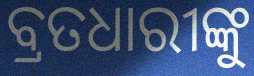
ବ୍ରତଧାରୀଙ୍କୁ